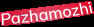
Pazhamozhi